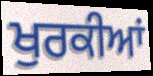
ਖੁਰਕੀਆਂ